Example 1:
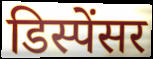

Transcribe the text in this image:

डिस्पेंसर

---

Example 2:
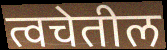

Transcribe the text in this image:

त्वचेतील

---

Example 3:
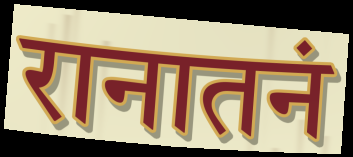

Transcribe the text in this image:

रानातनं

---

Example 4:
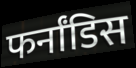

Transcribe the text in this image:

फर्नांडिस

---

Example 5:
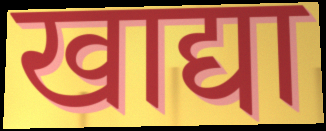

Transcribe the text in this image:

खाद्या